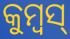
କୁମ୍ବସ୍